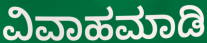
ವಿವಾಹಮಾಡಿ